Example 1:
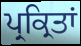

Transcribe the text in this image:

ਪ੍ਰਕ੍ਰਿਤਾਂ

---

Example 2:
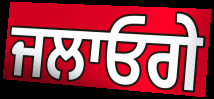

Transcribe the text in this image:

ਜਲਾਓਗੇ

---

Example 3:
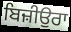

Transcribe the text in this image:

ਬਿਜ਼ੀਉਰਾ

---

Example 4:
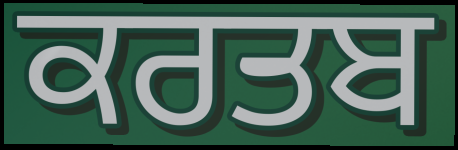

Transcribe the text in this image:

ਕਰਤਬ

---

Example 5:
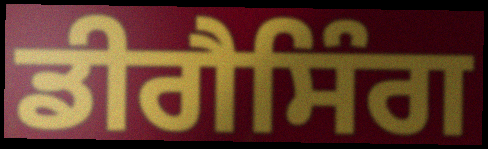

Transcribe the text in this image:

ਡੀਗੈਸਿੰਗ